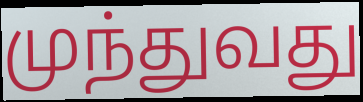
முந்துவது